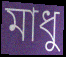
মাধু